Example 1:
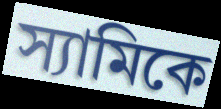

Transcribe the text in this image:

স্যামিকে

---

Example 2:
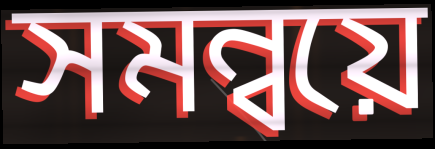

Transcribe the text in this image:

সমন্বয়ে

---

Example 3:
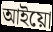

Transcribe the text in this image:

আইয়ো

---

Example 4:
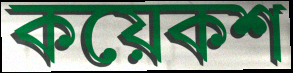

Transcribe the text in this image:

কয়েকশ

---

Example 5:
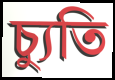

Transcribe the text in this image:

চ্যুতি